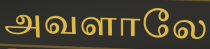
அவளாலே